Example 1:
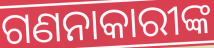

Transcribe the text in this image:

ଗଣନାକାରୀଙ୍କ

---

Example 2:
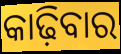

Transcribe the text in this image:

କାଢ଼ିବାର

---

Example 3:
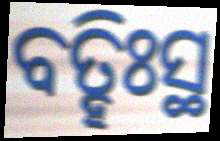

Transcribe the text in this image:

ବତ୍ହିଃସ୍ଥ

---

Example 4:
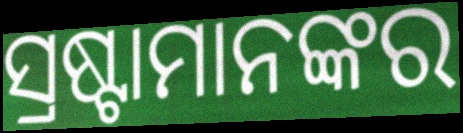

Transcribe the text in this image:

ସ୍ରଷ୍ଟାମାନଙ୍କର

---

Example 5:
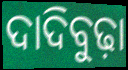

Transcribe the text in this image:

ଦାଦିବୁଢ଼ା